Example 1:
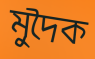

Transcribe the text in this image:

মুদৈক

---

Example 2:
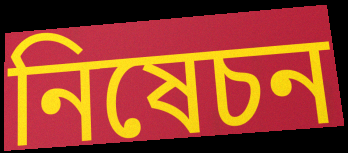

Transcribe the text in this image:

নিষেচন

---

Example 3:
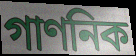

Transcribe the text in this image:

গাণনিক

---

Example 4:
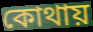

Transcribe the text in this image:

কোথায়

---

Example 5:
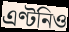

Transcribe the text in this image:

এণ্টনিও